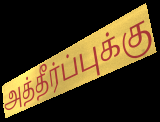
அத்தீர்ப்புக்கு